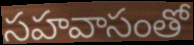
సహవాసంతో